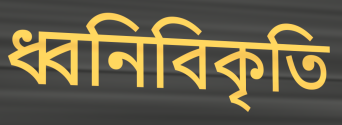
ধ্বনিবিকৃতি